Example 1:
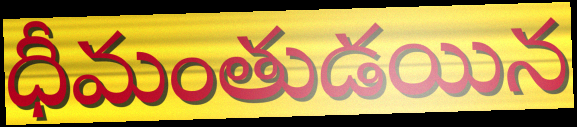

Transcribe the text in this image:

ధీమంతుడయిన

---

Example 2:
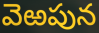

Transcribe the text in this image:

వెఱపున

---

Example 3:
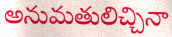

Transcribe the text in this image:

అనుమతులిచ్చినా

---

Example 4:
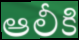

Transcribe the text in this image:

ఆలీకి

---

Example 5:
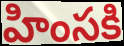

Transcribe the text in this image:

హింసకి